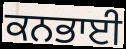
ਕਨਭਾਈ